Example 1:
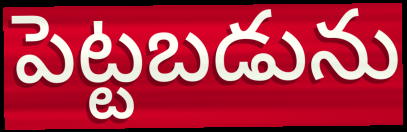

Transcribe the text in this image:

పెట్టబడును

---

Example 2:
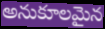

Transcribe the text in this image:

అనుకూలమైన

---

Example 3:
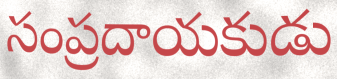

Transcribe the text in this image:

సంప్రదాయకుడు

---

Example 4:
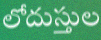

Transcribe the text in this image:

లోదుస్తుల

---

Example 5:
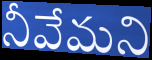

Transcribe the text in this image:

నీవేమని